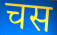
चस